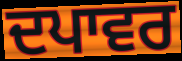
ਦਪਾਵਰ